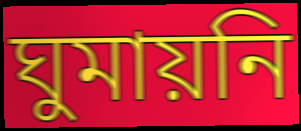
ঘুমায়নি